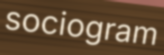
sociogram